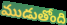
ముడుతోంది